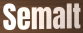
Semalt